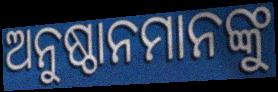
ଅନୁଷ୍ଠାନମାନଙ୍କୁ